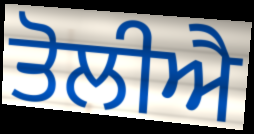
ਤੋਲੀਐ